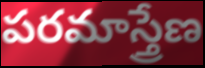
పరమాస్త్రేణ